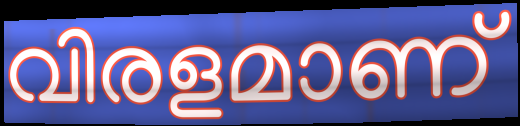
വിരളമാണ്